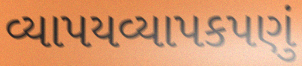
વ્યાપયવ્યાપકપણું